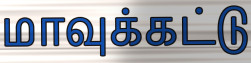
மாவுக்கட்டு